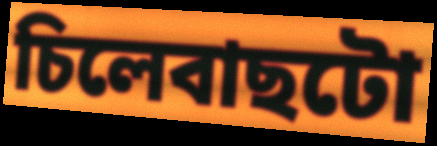
চিলেবাছটো